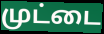
முட்டை